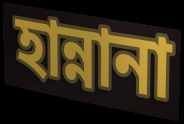
হান্নানা